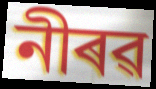
নীৰৱ